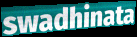
swadhinata